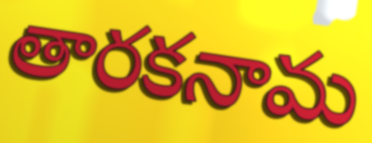
తారకనామ